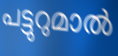
പട്ടുറുമാൽ